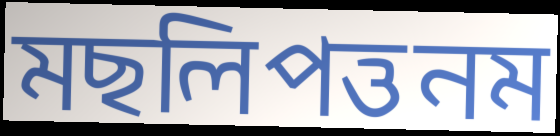
মছলিপত্তনম